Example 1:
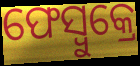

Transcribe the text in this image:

ଫେସ୍ବୁକ୍ରେ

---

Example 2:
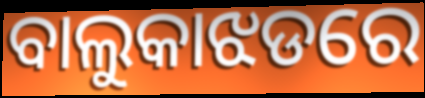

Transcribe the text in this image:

ବାଲୁକାଝଡରେ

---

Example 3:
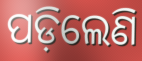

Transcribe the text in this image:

ପଡ଼ିଲେଣି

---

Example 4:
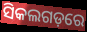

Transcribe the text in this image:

ସିକଲଗଡ଼ରେ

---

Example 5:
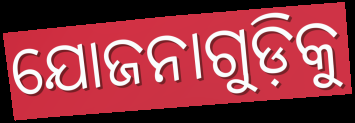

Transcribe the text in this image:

ଯୋଜନାଗୁଡ଼ିକୁ